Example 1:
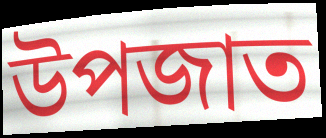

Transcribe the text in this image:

উপজাত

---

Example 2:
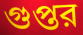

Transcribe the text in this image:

গুপ্তর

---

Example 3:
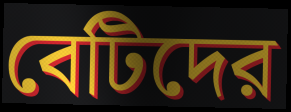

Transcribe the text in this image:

বেটিদের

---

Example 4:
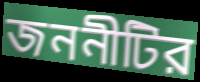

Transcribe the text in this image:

জননীটির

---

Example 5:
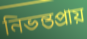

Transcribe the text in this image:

নিভন্তপ্রায়